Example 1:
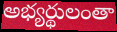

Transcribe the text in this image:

అభ్యర్థులంతా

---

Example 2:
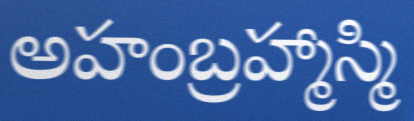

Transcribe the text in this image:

అహంబ్రహ్మాస్మి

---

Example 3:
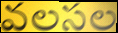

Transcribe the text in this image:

వలసల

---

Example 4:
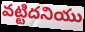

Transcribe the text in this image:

వట్టిదనియు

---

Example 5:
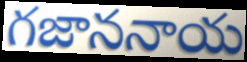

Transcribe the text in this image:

గజాననాయ